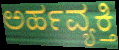
ಅರ್ಹವ್ಯಕ್ತಿ